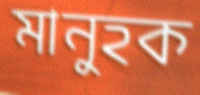
মানুহক